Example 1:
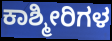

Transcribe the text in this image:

ಕಾಶ್ಮೀರಿಗಳ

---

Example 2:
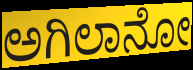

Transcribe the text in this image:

ಅಗಿಲಾನೋ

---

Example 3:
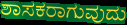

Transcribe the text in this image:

ಶಾಸಕರಾಗುವುದು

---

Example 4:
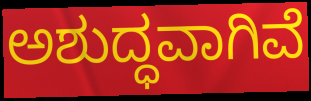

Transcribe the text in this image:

ಅಶುದ್ಧವಾಗಿವೆ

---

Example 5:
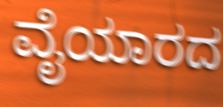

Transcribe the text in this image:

ವೈಯಾರದ